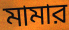
মামার